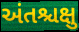
અંતશ્ચક્ષુ